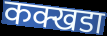
कक्खडा